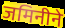
जमिनीने